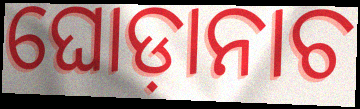
ଘୋଡ଼ାନାଚ